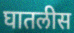
घातलीस